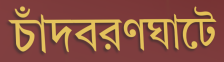
চাঁদবরণঘাটে